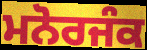
ਮਨੋਰਜੰਕ